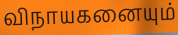
விநாயகனையும்